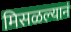
मिसळल्यानं